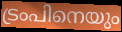
ട്രംപിനെയും